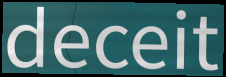
deceit